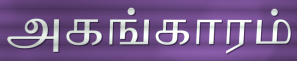
அகங்காரம்